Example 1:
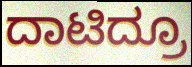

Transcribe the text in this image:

ದಾಟಿದ್ರೂ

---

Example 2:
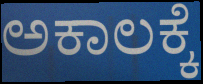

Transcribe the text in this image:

ಅಕಾಲಕ್ಕೆ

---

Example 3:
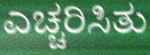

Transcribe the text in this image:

ಎಚ್ಚರಿಸಿತು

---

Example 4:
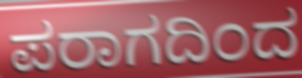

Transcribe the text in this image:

ಪರಾಗದಿಂದ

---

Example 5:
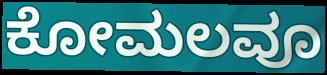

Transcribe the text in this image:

ಕೋಮಲವೂ